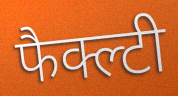
फैक्ल्टी